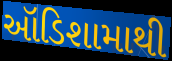
ઑડિશામાથી